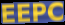
EEPC